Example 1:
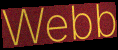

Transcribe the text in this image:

Webb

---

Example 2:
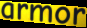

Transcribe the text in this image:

armor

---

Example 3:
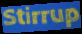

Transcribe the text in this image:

Stirrup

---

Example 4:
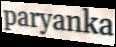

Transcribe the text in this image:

paryanka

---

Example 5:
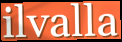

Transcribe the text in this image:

ilvalla